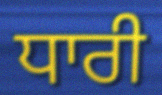
ਧਾਰੀ